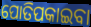
ପୋତିପକାଇବା